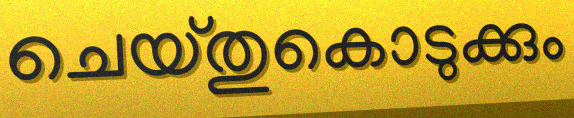
ചെയ്തുകൊടുക്കും